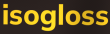
isogloss